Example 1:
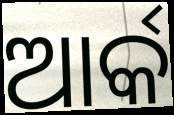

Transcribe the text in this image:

ଆର୍କ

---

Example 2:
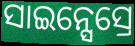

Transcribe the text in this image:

ସାଇନ୍ସେସ୍ରେ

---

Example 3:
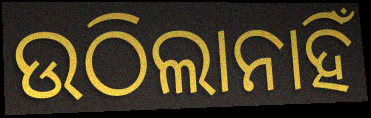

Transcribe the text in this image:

ଉଠିଲାନାହିଁ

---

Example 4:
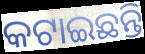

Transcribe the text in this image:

କଟାଇଛନ୍ତି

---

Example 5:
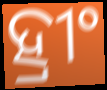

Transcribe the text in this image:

ହ୍ରୀଂ